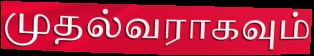
முதல்வராகவும்